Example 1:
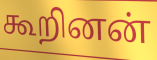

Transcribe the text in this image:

கூறினன்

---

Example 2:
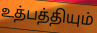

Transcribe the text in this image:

உத்பத்தியும்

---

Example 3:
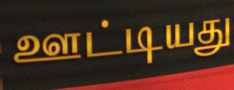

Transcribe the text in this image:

ஊட்டியது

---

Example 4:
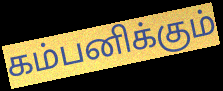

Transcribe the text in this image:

கம்பனிக்கும்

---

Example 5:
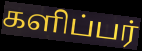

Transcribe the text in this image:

களிப்பர்